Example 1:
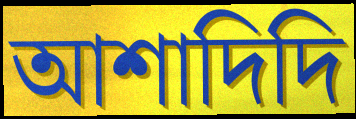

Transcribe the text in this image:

আশাদিদি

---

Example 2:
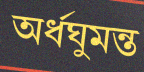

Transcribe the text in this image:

অর্ধঘুমন্ত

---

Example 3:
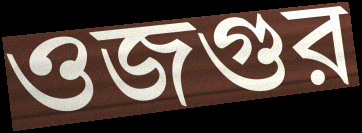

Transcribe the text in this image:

ওজগুর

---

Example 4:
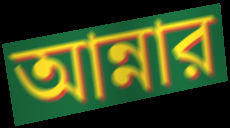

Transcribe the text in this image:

আন্নার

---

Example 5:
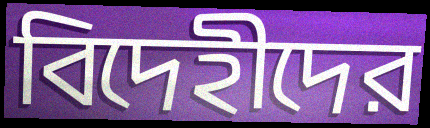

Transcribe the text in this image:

বিদেহীদের